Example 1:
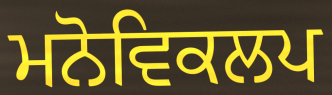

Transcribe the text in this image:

ਮਨੋਵਿਕਲਪ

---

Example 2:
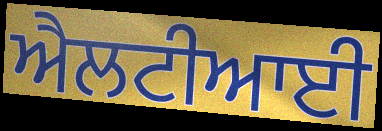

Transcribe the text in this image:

ਐਲਟੀਆਈ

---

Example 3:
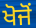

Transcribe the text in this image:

ਖੋਜੋਂ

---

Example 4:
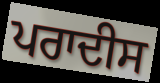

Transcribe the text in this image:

ਪਰਾਦੀਸ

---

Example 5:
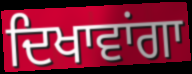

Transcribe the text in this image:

ਦਿਖਾਵਾਂਗਾ